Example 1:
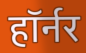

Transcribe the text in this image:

हॉर्नर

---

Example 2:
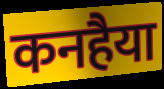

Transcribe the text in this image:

कनहैया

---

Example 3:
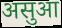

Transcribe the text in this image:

असुआ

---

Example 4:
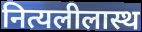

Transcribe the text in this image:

नित्यलीलास्थ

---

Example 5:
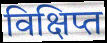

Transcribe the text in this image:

विक्षिप्त